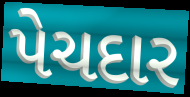
પેચદાર